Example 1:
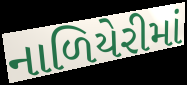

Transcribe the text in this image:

નાળિયેરીમાં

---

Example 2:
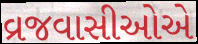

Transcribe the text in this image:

વ્રજવાસીઓએ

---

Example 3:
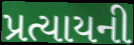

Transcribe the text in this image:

પ્રત્યાયની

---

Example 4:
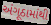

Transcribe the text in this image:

અંગૂઠામાંથી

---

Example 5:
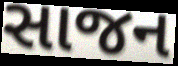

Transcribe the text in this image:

સાજન